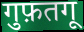
गुफ़तगू